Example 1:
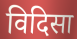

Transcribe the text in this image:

विदिसा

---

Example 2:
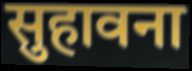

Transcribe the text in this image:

सुहावना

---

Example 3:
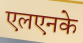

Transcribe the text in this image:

एलएनके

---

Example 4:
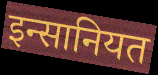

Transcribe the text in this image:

इन्सानियत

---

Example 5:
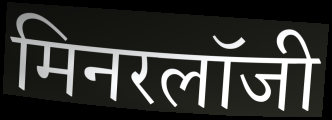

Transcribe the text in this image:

मिनरलॉजी